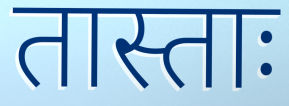
तास्ताः